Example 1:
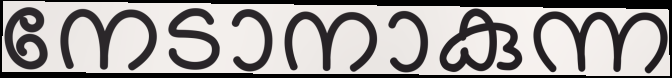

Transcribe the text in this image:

നേടാനാകുന്ന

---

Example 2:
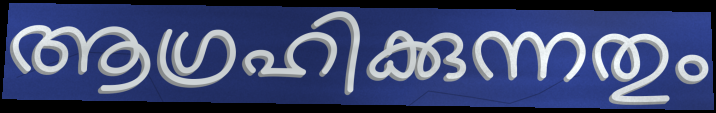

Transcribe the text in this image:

ആഗ്രഹിക്കുന്നതും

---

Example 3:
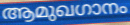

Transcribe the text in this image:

ആമുഖഗാനം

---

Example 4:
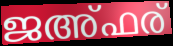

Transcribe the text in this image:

ജഅ്ഫര്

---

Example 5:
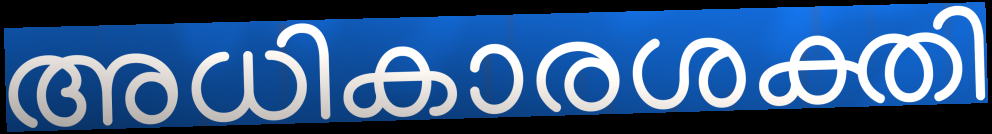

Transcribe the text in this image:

അധികാരശക്തി